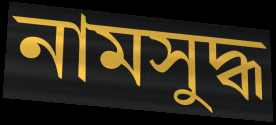
নামসুদ্ধ